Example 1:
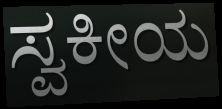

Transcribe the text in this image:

ಸ್ವಕೀಯ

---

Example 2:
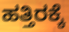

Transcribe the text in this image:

ಹತ್ತಿರಕ್ಕೆ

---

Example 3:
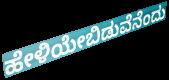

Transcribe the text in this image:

ಹೇಳಿಯೇಬಿಡುವೆನೆಂದು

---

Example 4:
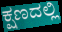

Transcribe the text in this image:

ಕ್ಷಣದಲ್ಲಿ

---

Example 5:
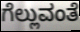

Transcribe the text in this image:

ಗೆಲ್ಲುವಂತೆ